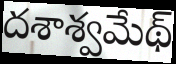
దశాశ్వమేథ్